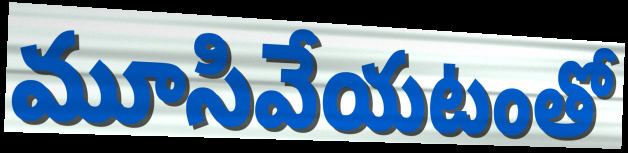
మూసివేయటంతో